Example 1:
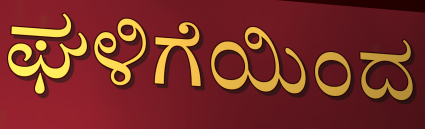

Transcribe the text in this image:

ಘಳಿಗೆಯಿಂದ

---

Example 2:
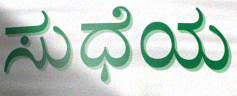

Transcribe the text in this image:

ಸುಧೆಯ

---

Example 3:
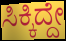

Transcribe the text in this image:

ಸಿಕ್ಕಿದ್ದೇ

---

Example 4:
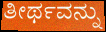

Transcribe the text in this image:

ತೀರ್ಥವನ್ನು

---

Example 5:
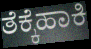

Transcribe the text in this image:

ತೆಕ್ಕೆಹಾಕಿ